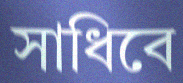
সাধিবে